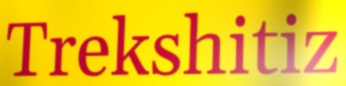
Trekshitiz